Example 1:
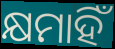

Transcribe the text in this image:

କ୍ଷମାହିଁ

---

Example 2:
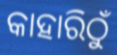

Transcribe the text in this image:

କାହାରିଠୁଁ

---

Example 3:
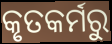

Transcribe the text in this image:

କୃତକର୍ମରୁ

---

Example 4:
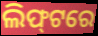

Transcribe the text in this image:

ଲିଫ୍‍ଟରେ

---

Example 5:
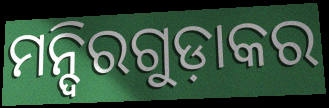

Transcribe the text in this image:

ମନ୍ଦିରଗୁଡ଼ାକର